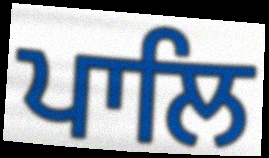
ਪਾਲਿ